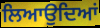
ਲਿਆਉਦਿਆਂ